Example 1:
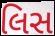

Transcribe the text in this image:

લિસ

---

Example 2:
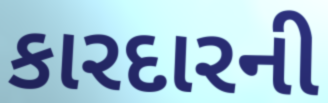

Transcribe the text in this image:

કારદારની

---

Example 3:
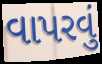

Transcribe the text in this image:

વાપરવું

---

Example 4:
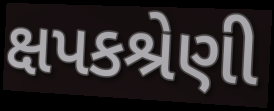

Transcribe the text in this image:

ક્ષપકશ્રેણી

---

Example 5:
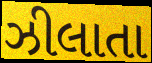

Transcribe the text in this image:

ઝીલાતા